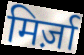
मिर्ज़ा